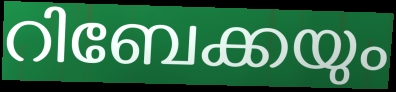
റിബേക്കയും